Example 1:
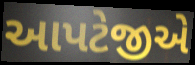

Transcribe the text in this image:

આપટેજીએ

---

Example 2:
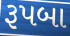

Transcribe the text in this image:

રૂપબા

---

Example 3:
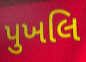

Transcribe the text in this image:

પુખલિ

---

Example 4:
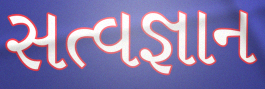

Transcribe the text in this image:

સત્વજ્ઞાન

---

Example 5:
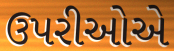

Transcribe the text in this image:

ઉપરીઓએ